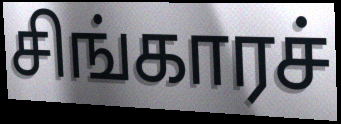
சிங்காரச்